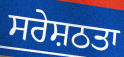
ਸਰੇਸ਼ਠਤਾ